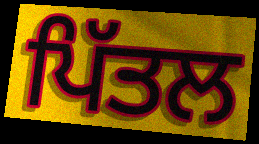
ਪਿੱਤਲ